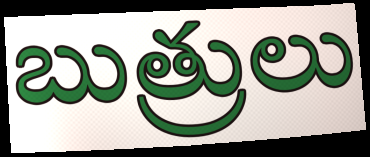
బుత్రులు